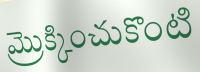
మ్రొక్కించుకొంటి